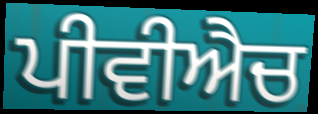
ਪੀਵੀਐਚ